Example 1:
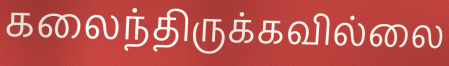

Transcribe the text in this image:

கலைந்திருக்கவில்லை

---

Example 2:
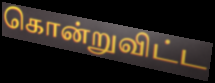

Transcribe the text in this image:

கொன்றுவிட்ட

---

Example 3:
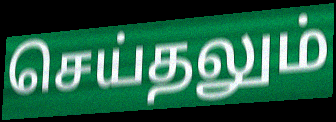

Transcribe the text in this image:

செய்தலும்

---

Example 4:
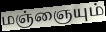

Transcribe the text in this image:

மஞ்ஞையும்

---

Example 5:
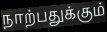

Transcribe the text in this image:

நாற்பதுக்கும்